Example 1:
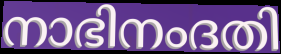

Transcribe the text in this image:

നാഭിനംദതി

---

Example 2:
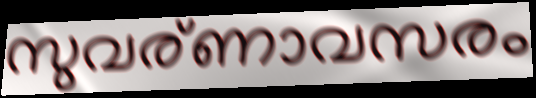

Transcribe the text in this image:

സുവര്ണാവസരം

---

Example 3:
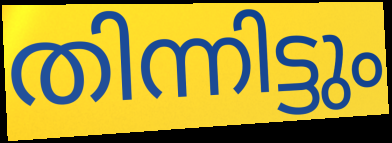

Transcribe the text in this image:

തിന്നിട്ടും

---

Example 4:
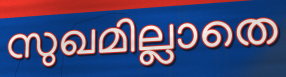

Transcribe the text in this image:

സുഖമില്ലാതെ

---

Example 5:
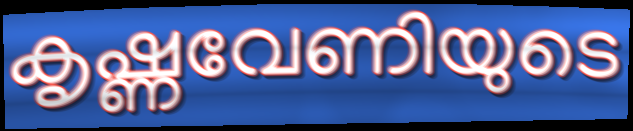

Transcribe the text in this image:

കൃഷ്ണവേണിയുടെ